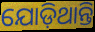
ଯୋଡ଼ିଥାନ୍ତି